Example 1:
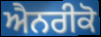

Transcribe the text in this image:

ਐਨਰੀਕੋ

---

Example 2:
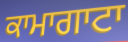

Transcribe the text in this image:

ਕਾਮਾਗਾਟਾ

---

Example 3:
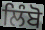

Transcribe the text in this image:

ਲਿੰਬੋ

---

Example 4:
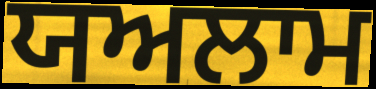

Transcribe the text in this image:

ਯਅਲਾਮ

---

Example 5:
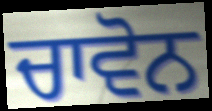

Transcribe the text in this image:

ਚਾਵੋਨ